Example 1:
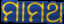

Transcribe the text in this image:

ମାମଥ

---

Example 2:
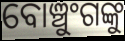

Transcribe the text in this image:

ବୋଞ୍ଚୁଂଗଙ୍କୁ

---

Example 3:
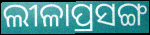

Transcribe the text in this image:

ଲୀଳାପ୍ରସଙ୍ଗ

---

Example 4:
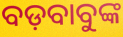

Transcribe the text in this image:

ବଡ଼ବାବୁଙ୍କ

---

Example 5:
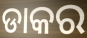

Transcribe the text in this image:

ଡାକର